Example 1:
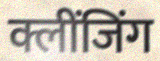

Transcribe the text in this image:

क्लींजिंग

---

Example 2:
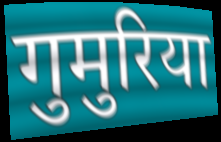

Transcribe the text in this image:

गुमुरिया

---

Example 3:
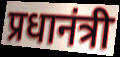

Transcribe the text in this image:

प्रधानंत्री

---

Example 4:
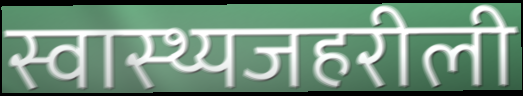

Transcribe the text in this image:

स्वास्थ्यजहरीली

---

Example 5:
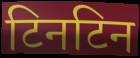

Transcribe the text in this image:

टिनटिन